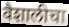
वैशालीचा